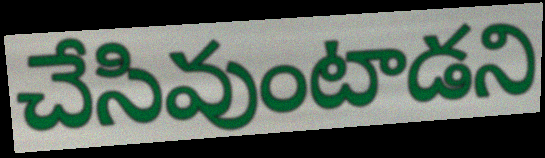
చేసివుంటాడని